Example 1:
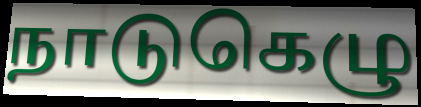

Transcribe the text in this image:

நாடுகெழு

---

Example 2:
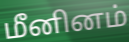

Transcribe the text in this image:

மீனினம்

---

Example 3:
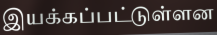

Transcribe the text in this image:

இயக்கப்பட்டுள்ளன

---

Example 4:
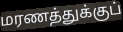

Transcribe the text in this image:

மரணத்துக்குப்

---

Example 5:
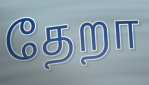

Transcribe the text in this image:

தேறா